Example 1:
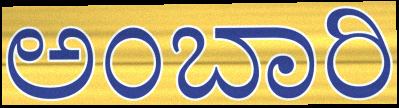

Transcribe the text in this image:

ಅಂಬಾರಿ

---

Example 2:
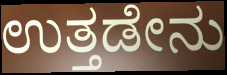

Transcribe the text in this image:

ಉತ್ತಡೇನು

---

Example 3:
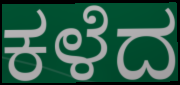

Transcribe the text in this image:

ಕಳೆದ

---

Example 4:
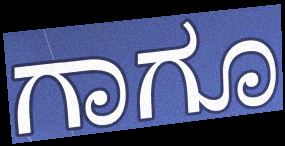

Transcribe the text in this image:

ಗಾಗೂ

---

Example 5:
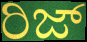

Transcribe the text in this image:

ರಿಜ್